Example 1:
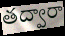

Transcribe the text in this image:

తద్వారా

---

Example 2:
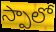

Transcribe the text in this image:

స్పాలో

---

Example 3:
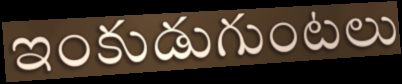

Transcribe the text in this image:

ఇంకుడుగుంటలు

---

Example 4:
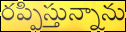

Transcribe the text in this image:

రప్పిస్తున్నాను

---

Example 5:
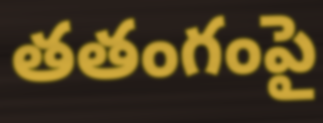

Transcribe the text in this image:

తతంగంపై